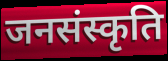
जनसंस्कृति